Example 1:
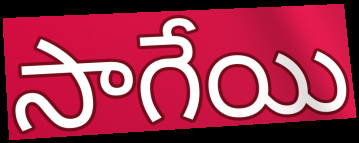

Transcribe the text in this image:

సాగేయి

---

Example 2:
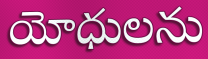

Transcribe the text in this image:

యోధులను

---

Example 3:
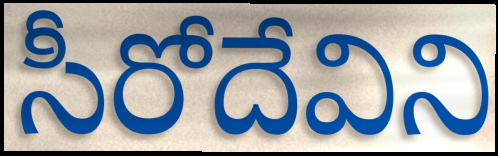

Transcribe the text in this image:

సీరోదేవిని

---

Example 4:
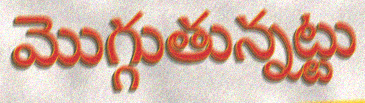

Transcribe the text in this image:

మొగ్గుతున్నట్టు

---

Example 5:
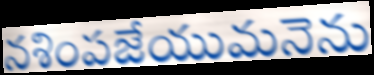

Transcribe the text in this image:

నశింపజేయుమనెను